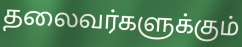
தலைவர்களுக்கும்